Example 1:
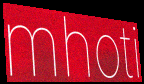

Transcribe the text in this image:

mhoti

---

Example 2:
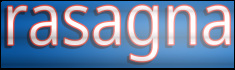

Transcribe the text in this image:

rasagna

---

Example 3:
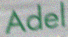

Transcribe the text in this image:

Adel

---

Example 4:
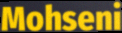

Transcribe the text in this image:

Mohseni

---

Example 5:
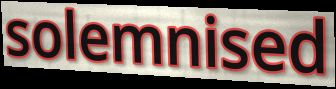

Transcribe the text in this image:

solemnised